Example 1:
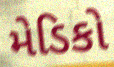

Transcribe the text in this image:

મેડિકો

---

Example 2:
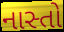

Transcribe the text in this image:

નાસ્તો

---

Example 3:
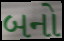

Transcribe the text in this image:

બનો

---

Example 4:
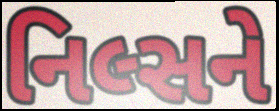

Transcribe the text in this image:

નિલ્સને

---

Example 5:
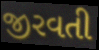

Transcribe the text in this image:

જીરવતી